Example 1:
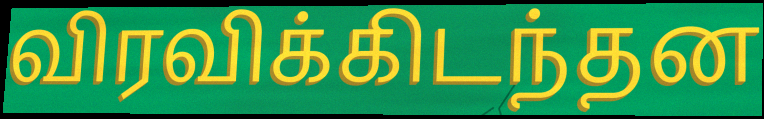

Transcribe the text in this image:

விரவிக்கிடந்தன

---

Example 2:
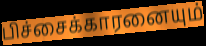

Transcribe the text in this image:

பிச்சைக்காரனையும்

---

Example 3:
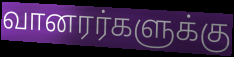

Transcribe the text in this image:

வானரர்களுக்கு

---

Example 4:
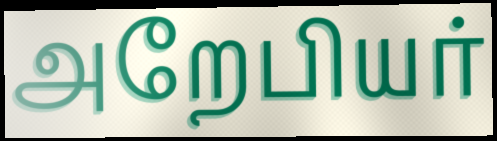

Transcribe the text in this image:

அறேபியர்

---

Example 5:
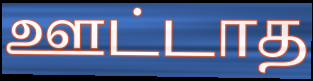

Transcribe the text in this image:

ஊட்டாத